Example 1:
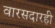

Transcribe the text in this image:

वारसदारही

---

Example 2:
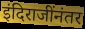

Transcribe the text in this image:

इंदिराजींनंतर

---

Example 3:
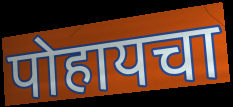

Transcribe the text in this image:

पोहायचा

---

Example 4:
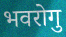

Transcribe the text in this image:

भवरोगु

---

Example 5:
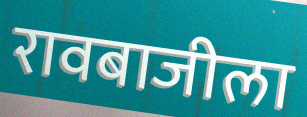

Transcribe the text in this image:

रावबाजीला